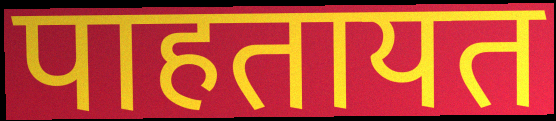
पाहतायत